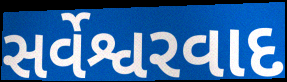
સર્વેશ્વરવાદ